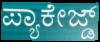
ಪ್ಯಾಕೇಜ್ಡ್